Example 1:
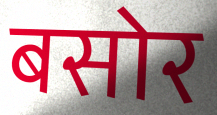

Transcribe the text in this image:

बसोर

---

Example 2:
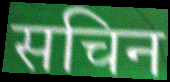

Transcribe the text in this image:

सचिन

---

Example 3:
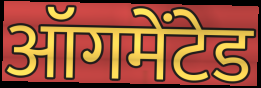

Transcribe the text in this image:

ऑगमेंटेड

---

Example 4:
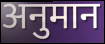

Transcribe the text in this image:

अनुमान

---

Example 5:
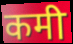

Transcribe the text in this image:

कमी